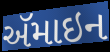
ઍમાઇન